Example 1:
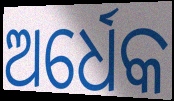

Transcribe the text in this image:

ଅର୍ଧେକ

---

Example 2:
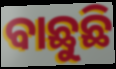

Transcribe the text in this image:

ବାଛୁଛି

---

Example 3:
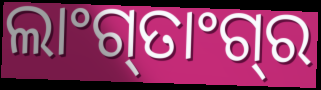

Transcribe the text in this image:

ଲାଂଗ୍‍ତାଂଗ୍‍ର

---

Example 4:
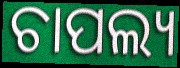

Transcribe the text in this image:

ଚାପଲ୍ୟ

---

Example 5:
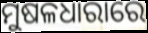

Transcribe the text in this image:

ମୁଷଳଧାରାରେ